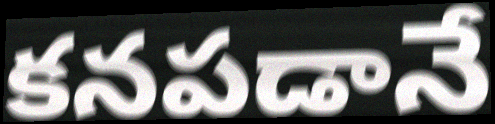
కనపడానే